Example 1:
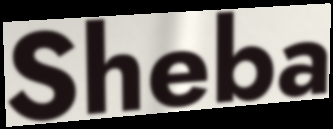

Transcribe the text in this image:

Sheba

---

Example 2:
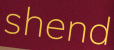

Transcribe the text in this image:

shend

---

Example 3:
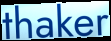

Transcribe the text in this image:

thaker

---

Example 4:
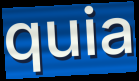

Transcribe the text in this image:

quia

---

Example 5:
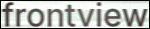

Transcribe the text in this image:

frontview